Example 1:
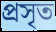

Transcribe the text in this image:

প্রসৃত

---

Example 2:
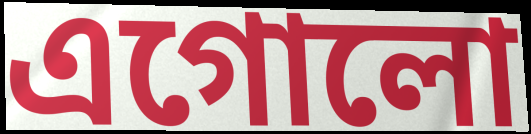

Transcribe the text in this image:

এগোলো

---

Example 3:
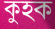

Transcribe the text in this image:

কুহক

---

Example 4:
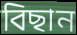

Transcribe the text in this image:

বিছান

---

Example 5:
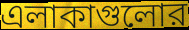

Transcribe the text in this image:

এলাকাগুলোর